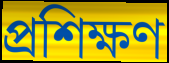
প্রশিক্ষণ